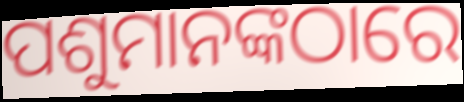
ପଶୁମାନଙ୍କଠାରେ